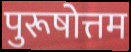
पुरूषोत्तम